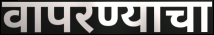
वापरण्याचा